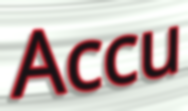
Accu